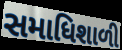
સમાધિશાળી